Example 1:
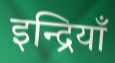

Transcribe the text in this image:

इन्द्रियाँ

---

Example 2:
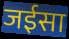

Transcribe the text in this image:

जईसा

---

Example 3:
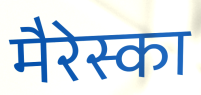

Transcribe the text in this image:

मैरेस्का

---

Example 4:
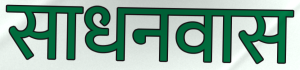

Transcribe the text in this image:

साधनवास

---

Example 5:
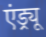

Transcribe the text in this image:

एंड्र्यू